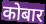
कोबार